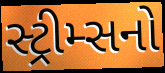
સ્ટ્રીમ્સનો